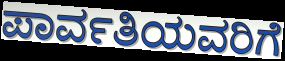
ಪಾರ್ವತಿಯವರಿಗೆ